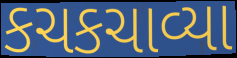
કચકચાવ્યા